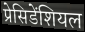
प्रेसिडेंशियल